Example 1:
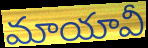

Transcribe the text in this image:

మాయావీ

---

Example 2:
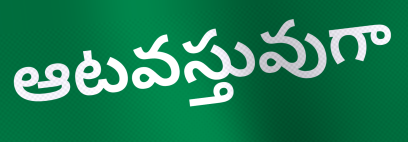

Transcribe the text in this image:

ఆటవస్తువుగా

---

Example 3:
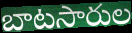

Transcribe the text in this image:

బాటసారుల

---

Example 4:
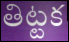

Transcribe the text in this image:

తిట్టక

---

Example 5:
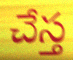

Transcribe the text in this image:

చేస్త